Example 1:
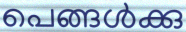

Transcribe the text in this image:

പെങ്ങൾക്കു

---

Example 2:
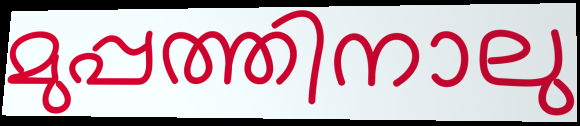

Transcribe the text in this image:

മുപ്പത്തിനാലു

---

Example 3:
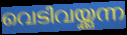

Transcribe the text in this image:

വെടിവയ്ക്കുന്ന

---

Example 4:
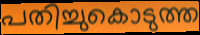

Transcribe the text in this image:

പതിച്ചുകൊടുത്ത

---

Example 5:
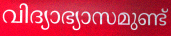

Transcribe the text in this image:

വിദ്യാഭ്യാസമുണ്ട്